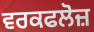
ਵਰਕਫਲੋਜ਼